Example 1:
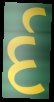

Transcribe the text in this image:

ર્દ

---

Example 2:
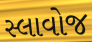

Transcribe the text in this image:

સ્લાવોજ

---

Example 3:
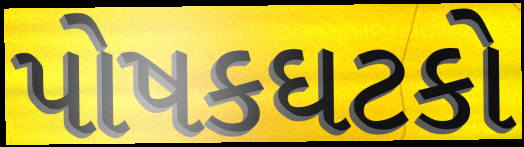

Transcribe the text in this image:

પોષકઘટકો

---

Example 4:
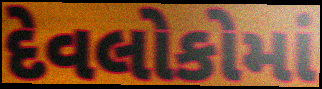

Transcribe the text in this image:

દેવલોકોમાં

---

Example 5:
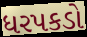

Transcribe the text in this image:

ધરપકડો